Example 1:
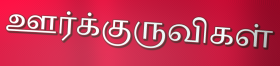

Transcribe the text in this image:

ஊர்க்குருவிகள்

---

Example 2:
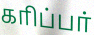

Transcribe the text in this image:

கரிப்பர்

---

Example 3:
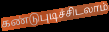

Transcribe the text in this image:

கண்டுபுடிச்சிடலாம்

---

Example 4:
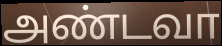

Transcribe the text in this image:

அண்டவா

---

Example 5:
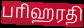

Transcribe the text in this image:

பரிஹரதி